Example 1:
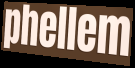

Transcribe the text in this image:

phellem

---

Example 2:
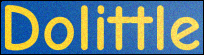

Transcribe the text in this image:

Dolittle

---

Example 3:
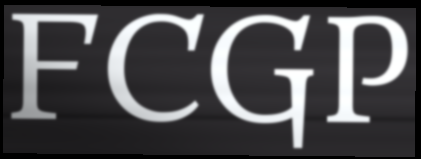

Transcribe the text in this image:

FCGP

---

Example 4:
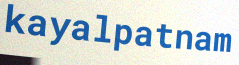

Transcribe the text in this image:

kayalpatnam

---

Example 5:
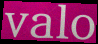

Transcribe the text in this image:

valo